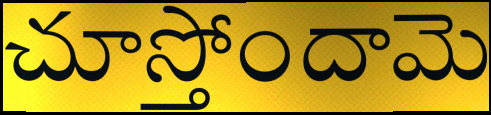
చూస్తోందామె